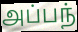
அப்பந்